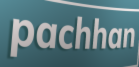
pachhan